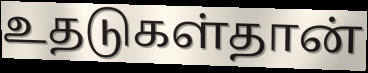
உதடுகள்தான்